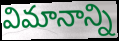
విమానాన్ని